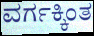
ವರ್ಗಕ್ಕಿಂತ